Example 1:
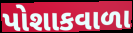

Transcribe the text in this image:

પોશાકવાળા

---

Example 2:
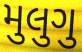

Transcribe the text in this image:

મુલુગુ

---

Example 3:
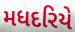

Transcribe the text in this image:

મધદરિયે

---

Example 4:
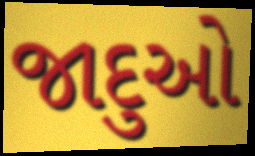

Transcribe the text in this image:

જાદુઓ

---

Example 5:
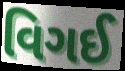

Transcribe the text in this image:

વિગઈ